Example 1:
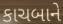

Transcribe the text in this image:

કાચબાને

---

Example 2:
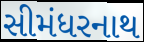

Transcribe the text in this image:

સીમંધરનાથ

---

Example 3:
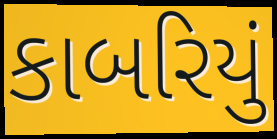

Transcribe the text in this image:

કાબરિયું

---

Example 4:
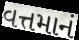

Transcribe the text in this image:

વત્તમાનં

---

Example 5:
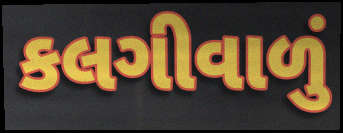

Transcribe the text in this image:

કલગીવાળું